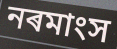
নৰমাংস